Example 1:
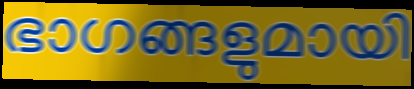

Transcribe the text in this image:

ഭാഗങ്ങളുമായി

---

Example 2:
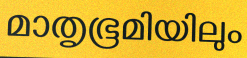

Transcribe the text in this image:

മാതൃഭൂമിയിലും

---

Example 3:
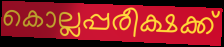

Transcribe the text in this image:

കൊല്ലപ്പരീക്ഷക്ക്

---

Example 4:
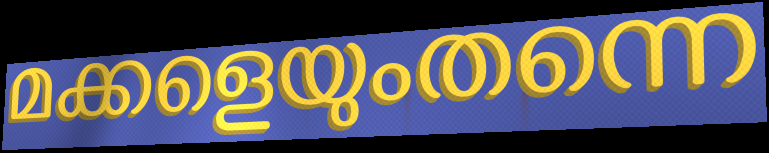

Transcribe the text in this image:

മക്കളെയുംതന്നെ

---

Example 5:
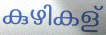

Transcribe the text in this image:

കുഴികള്